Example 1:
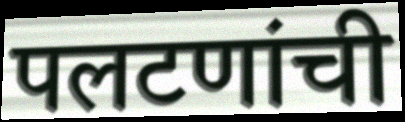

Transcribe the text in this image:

पलटणांची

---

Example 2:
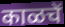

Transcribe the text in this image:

काळचें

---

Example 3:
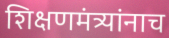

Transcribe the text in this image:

शिक्षणमंत्र्यांनाच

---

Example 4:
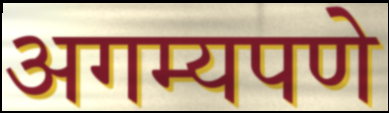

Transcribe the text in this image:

अगम्यपणे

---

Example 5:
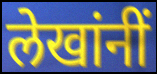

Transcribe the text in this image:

लेखांनीं